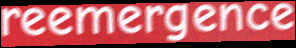
reemergence